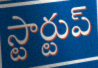
స్టార్టుప్